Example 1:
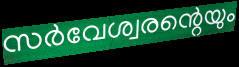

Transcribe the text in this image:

സർവേശ്വരന്റെയും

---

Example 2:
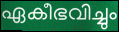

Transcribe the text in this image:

ഏകീഭവിച്ചും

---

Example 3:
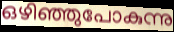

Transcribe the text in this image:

ഒഴിഞ്ഞുപോകുന്നു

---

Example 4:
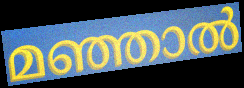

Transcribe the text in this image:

മഞ്ഞാൽ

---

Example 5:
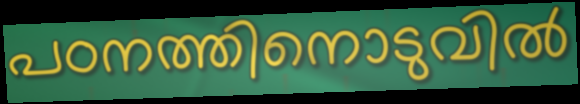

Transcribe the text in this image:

പഠനത്തിനൊടുവിൽ